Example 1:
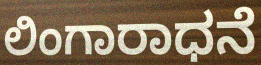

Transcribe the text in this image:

ಲಿಂಗಾರಾಧನೆ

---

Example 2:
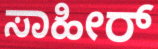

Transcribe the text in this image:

ಸಾಹೀರ್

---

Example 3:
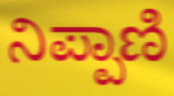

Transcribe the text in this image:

ನಿಪ್ಪಾಣಿ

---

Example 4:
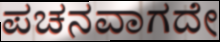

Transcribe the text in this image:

ಪಚನವಾಗದೇ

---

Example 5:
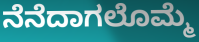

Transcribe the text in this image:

ನೆನೆದಾಗಲೊಮ್ಮೆ